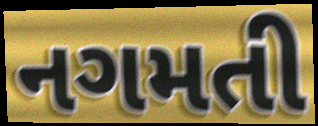
નગમતી